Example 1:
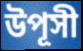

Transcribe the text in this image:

উপূসী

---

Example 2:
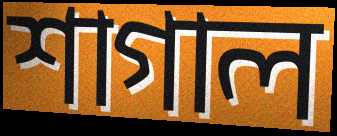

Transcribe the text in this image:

শাগাল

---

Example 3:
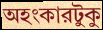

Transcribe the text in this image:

অহংকারটুকু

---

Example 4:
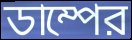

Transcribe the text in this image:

ডাম্পের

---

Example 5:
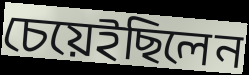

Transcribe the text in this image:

চেয়েইছিলেন